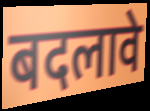
बदलावे